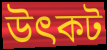
উৎকট